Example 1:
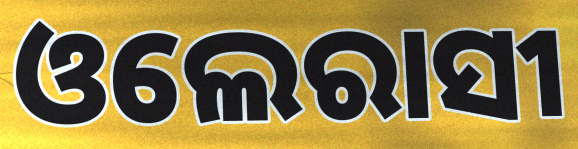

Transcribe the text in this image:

ଓଲେରାସୀ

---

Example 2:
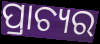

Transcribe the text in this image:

ପ୍ରାଚ୍ୟର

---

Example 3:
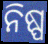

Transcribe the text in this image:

ନିଷ୍ପ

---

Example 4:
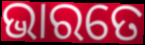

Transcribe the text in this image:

ଭାରତେ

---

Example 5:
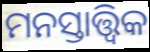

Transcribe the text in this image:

ମନସ୍ତାତ୍ତ୍ଵିକ